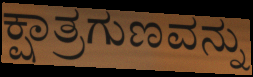
ಕ್ಷಾತ್ರಗುಣವನ್ನು